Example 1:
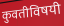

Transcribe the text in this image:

कुवतीविषयी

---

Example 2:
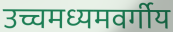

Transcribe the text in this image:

उच्चमध्यमवर्गीय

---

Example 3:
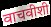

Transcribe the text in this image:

वाचवीशी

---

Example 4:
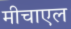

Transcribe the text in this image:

मीचाएल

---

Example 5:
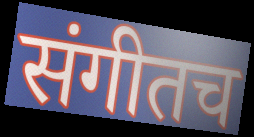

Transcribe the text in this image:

संगीतच